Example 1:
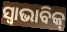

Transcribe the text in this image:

ସ୍ଵାଭାବିକ୍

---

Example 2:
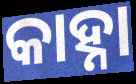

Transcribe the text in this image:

କାହ୍ନା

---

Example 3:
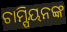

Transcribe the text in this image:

ଚାମ୍ପିୟନଙ୍କ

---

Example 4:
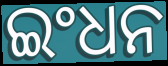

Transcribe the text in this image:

ଇଂଧନ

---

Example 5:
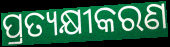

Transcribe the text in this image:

ପ୍ରତ୍ୟକ୍ଷୀକରଣ